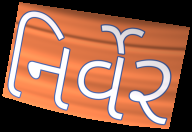
નિર્વેર